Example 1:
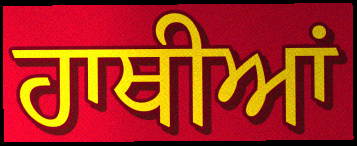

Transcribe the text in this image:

ਹਾਥੀਆਂ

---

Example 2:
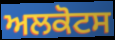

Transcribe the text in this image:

ਅਲਕੋਟਸ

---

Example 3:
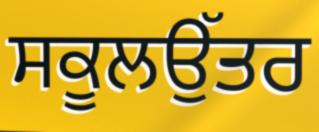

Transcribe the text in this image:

ਸਕੂਲਉੱਤਰ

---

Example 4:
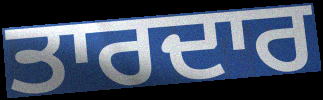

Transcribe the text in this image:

ਤਾਰਦਾਰ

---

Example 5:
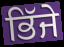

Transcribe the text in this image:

ਭਿੱਜੇ